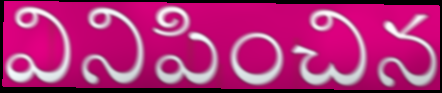
వినిపించిన